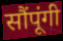
सौंपूंगी